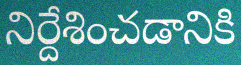
నిర్దేశించడానికి